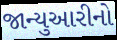
જાન્યુઆરીનો